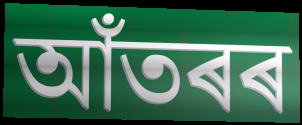
আঁতৰৰ